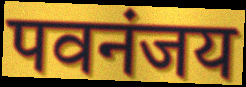
पवनंजय